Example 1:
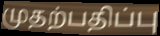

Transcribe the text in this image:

முதற்பதிப்பு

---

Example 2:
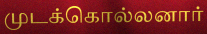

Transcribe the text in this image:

முடக்கொல்லனார்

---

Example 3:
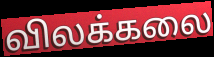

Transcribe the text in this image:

விலக்கலை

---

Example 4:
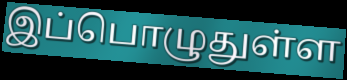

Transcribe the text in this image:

இப்பொழுதுள்ள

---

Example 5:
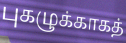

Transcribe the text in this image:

புகழுக்காகத்